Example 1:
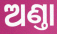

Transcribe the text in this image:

ଅଣ୍ତା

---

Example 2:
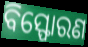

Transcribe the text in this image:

ବିସ୍ଫୋରଣ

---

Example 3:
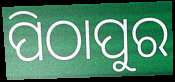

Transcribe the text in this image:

ପିଠାପୁର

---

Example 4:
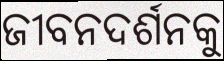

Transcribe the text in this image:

ଜୀବନଦର୍ଶନକୁ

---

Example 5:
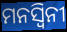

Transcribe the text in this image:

ମନସ୍ୱିନୀ